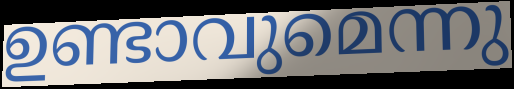
ഉണ്ടാവുമെന്നു